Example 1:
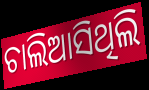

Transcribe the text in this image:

ଚାଲିଆସିଥିଲି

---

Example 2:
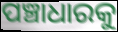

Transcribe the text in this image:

ପଞ୍ଚାଧାରକୁ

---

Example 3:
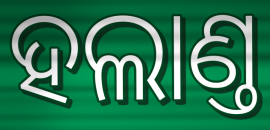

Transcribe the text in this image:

ହଲାଣ୍ତ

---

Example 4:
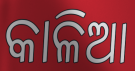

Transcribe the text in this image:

କାଳିଆ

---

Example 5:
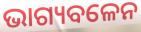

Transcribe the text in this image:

ଭାଗ୍ୟବଳେନ